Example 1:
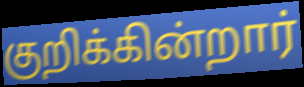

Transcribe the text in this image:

குறிக்கின்றார்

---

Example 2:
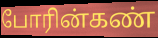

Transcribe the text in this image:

போரின்கண்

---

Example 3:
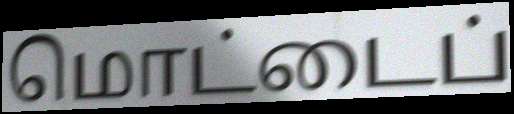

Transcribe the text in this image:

மொட்டைப்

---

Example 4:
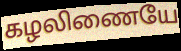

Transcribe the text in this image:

கழலிணையே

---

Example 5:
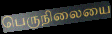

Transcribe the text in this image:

பெருநிலையை